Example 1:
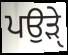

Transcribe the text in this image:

ਪਉੜੑੇ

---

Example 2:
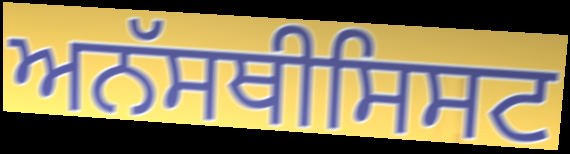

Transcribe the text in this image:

ਅਨੱਸਥੀਸਿਸਟ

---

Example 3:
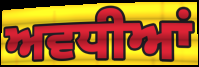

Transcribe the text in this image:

ਅਵਧੀਆਂ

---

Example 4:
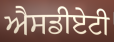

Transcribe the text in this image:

ਐਸਡੀਏਟੀ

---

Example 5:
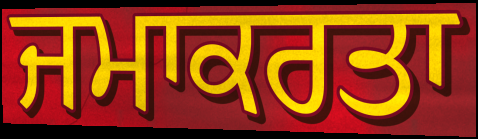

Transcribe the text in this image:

ਜਮਾਕਰਤਾ